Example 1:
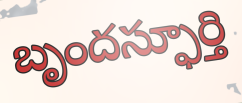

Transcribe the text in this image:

బృందస్ఫూర్తి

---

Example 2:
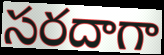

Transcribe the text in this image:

సరదాగా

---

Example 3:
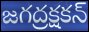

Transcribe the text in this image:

జగద్రక్షకన్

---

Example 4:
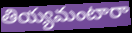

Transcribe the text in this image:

తియ్యమంటారా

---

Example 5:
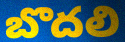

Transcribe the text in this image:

బొదలి